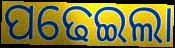
ପଢେଇଲା